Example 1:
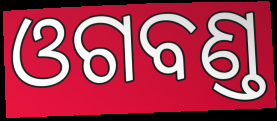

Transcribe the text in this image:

ଓଗବଣ୍ଡ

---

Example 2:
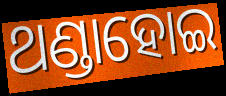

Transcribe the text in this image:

ଥଣ୍ଡାହୋଇ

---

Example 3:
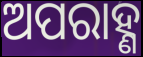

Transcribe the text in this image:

ଅପରାହ୍ଣ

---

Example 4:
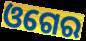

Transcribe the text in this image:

ଓଗେର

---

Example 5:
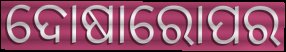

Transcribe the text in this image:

ଦୋଷାରୋପର